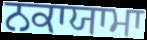
ਨਕਾਯਾਮਾ